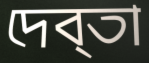
দেব্‌তা